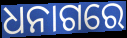
ଧନାଗରେ